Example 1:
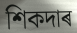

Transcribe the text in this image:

শিকদাৰ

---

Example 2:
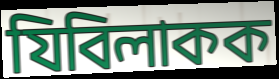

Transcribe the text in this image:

যিবিলাকক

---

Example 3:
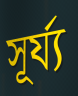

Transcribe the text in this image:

সূৰ্য্য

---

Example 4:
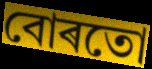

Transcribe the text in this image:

বোৰতো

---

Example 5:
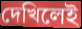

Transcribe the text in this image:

দেখিলেই